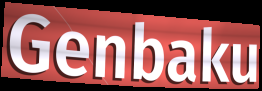
Genbaku